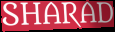
SHARAD